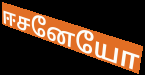
ஈசனேயோ